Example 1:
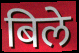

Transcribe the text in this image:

बिले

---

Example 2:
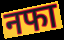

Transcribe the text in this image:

नफा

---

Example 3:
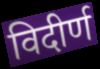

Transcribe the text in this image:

विदीर्ण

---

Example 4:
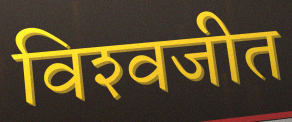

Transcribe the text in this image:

विश्वजीत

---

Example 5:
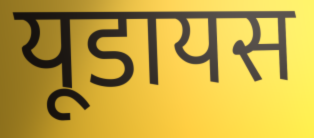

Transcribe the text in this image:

यूडायस